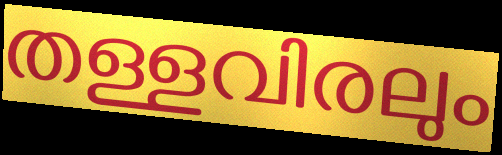
തള്ളവിരലും